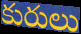
కురులు